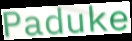
Paduke